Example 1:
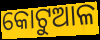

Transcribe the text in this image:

କୋଟୁଆଳ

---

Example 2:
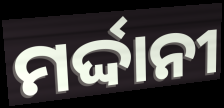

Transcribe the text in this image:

ମର୍ଦ୍ଦାନୀ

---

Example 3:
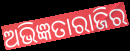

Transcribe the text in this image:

ଅଭିଜ୍ଞତାରାଜିର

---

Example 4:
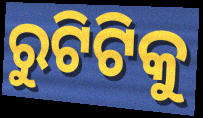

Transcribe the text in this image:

ରୁଟିଟିକୁ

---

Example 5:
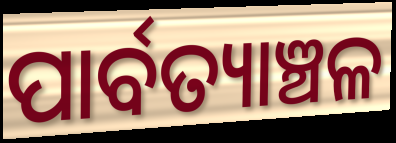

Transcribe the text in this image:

ପାର୍ବତ୍ୟାଞ୍ଚଳ